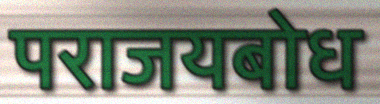
पराजयबोध